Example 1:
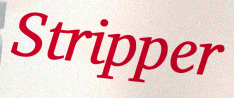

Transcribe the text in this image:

Stripper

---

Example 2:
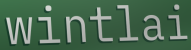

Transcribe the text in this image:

wintlai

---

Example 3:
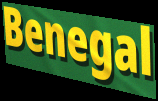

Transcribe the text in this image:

Benegal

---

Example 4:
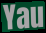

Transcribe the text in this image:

Yau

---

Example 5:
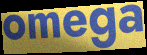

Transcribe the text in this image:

omega